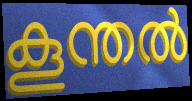
കൂന്തൽ